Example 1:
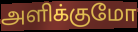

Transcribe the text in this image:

அளிக்குமோ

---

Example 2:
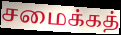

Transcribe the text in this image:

சமைக்கத்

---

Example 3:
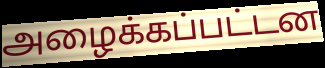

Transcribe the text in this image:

அழைக்கப்பட்டன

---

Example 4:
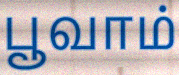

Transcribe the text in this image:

பூவாம்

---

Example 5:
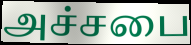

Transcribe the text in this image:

அச்சபை